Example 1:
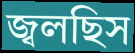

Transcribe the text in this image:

জ্বলছিস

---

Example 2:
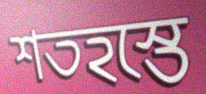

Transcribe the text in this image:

শতহস্তে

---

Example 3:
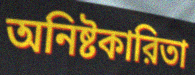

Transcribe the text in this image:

অনিষ্টকারিতা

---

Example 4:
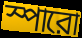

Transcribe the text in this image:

স্পারো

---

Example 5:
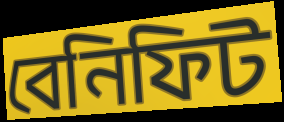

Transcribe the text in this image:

বেনিফিট